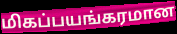
மிகப்பயங்கரமான